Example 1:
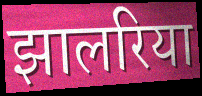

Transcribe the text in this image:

झालरिया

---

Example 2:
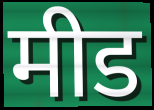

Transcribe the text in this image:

मीड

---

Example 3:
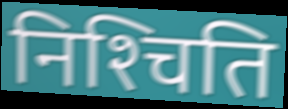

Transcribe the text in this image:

निश्चिति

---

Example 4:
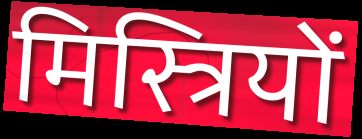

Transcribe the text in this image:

मिस्त्रियों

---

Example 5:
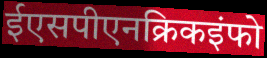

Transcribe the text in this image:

ईएसपीएनक्रिकइंफो